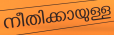
നീതിക്കായുള്ള